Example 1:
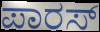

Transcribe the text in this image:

ಪಾರಸ್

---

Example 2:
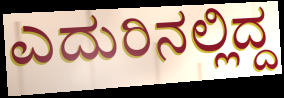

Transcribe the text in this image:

ಎದುರಿನಲ್ಲಿದ್ದ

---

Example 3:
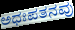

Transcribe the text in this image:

ಅಧಃಪತನವು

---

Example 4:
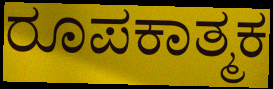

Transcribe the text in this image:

ರೂಪಕಾತ್ಮಕ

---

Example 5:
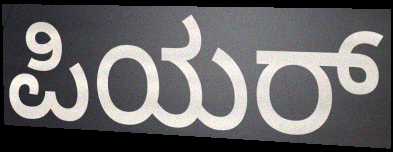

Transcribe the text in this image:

ಪಿಯರ್